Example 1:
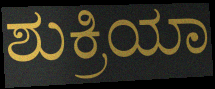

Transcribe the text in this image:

ಶುಕ್ರಿಯಾ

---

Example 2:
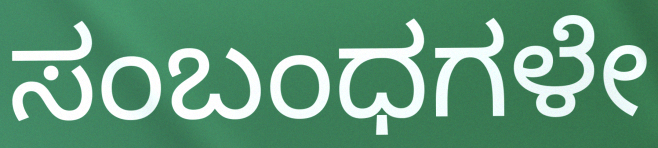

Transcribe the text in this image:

ಸಂಬಂಧಗಳೇ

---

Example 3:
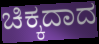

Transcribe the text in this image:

ಚಿಕ್ಕದಾದ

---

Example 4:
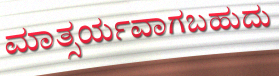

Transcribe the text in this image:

ಮಾತ್ಸರ್ಯವಾಗಬಹುದು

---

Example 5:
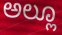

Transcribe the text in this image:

ಅಲ್ಲೂ